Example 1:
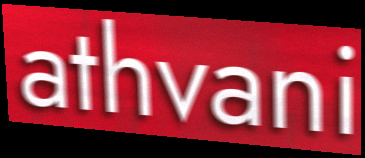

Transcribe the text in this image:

athvani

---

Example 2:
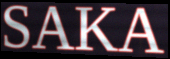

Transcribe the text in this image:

SAKA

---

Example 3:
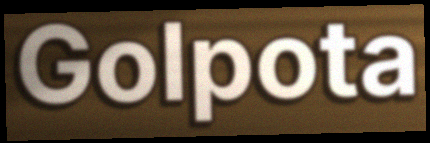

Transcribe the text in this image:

Golpota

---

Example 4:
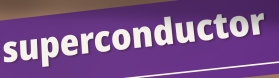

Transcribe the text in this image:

superconductor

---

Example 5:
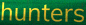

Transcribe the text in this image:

hunters